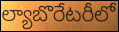
ల్యాబొరేటరీలో